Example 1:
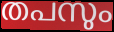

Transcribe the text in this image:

തപസും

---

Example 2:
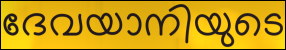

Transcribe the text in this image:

ദേവയാനിയുടെ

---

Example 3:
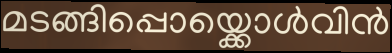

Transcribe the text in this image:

മടങ്ങിപ്പൊയ്ക്കൊൾവിൻ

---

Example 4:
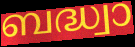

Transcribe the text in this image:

ബദ്ധ്വാ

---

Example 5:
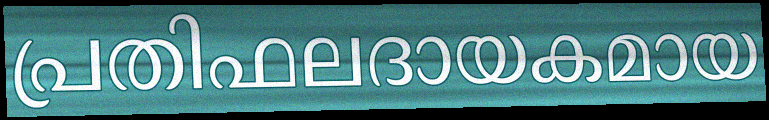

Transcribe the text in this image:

പ്രതിഫലദായകമായ